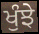
ਖੁੰਝੇ